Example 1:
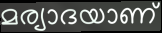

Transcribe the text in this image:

മര്യാദയാണ്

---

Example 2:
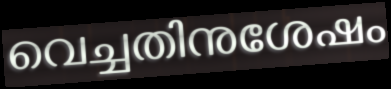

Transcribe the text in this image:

വെച്ചതിനുശേഷം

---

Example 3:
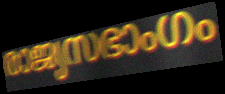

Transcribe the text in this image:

രാജ്യസഭാംഗം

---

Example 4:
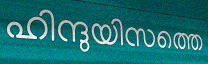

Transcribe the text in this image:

ഹിന്ദുയിസത്തെ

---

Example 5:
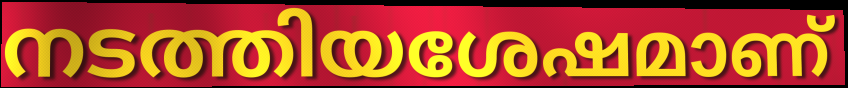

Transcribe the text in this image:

നടത്തിയശേഷമാണ്